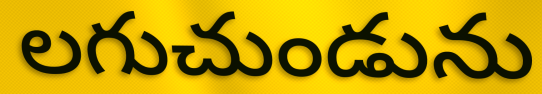
లగుచుండును